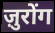
ज़ुरोंग